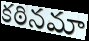
కఠినమా